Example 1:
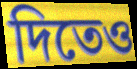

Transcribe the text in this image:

দিতেও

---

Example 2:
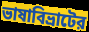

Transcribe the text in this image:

ভাষাবিভ্রাটের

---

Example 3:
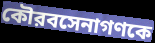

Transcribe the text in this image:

কৌরবসেনাগণকে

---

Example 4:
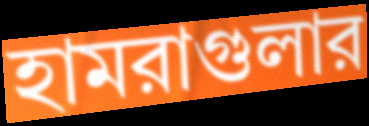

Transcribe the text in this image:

হামরাগুলার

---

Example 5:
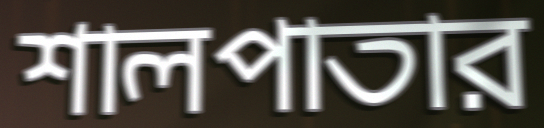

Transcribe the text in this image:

শালপাতার